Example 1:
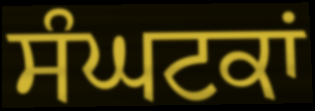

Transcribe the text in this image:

ਸੰਘਟਕਾਂ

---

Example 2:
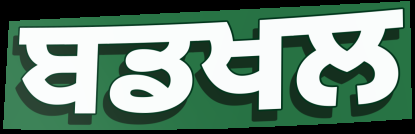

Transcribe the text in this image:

ਬਡਖਲ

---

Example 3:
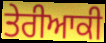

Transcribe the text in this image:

ਤੇਰੀਆਕੀ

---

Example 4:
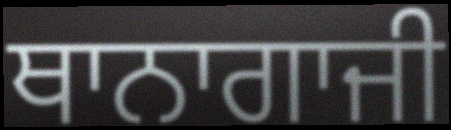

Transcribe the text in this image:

ਥਾਨਾਗਾਜੀ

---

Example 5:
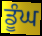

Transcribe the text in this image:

ਡੂੰਘ